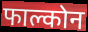
फाल्कोन